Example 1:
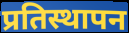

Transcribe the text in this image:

प्रतिस्थापन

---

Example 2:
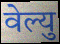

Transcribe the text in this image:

वेल्यु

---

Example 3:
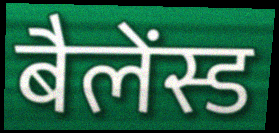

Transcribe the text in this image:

बैलेंस्ड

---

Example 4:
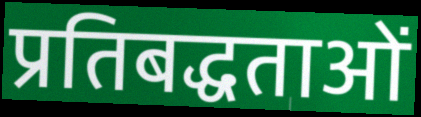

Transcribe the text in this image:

प्रतिबद्धताओं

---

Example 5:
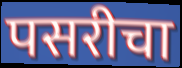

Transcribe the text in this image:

पसरीचा